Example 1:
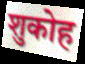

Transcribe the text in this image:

शुकोह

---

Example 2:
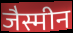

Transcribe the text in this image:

जैस्मीन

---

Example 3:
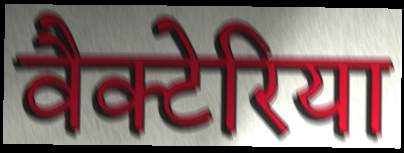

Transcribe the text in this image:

वैक्टेरिया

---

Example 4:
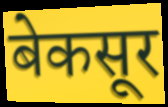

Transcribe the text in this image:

बेकसूर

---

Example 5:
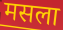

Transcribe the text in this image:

मसला